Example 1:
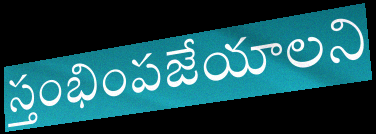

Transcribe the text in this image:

స్తంభింపజేయాలని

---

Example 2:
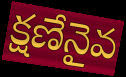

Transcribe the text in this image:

క్షణేనైవ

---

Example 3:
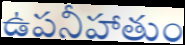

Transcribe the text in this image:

ఉపనీహాతుం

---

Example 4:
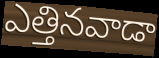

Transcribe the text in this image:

ఎత్తినవాడా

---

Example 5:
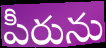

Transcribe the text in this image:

పీరును